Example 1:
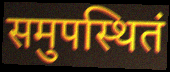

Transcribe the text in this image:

समुपस्थितं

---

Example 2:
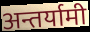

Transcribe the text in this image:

अन्‍तर्यामी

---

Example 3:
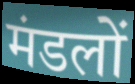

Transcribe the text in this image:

मंडलों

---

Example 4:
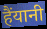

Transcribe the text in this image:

हैंयानी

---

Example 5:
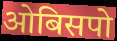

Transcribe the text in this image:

ओबिसपो